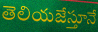
తెలియజేస్తూనే